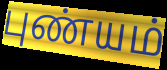
புண்யம்